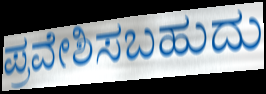
ಪ್ರವೇಶಿಸಬಹುದು